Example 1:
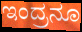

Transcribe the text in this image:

ಇಂದ್ರನೂ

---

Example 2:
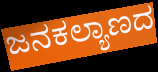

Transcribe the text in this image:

ಜನಕಲ್ಯಾಣದ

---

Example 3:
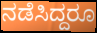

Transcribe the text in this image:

ನಡೆಸಿದ್ದರೂ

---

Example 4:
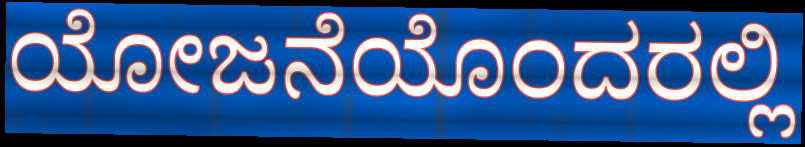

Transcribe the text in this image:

ಯೋಜನೆಯೊಂದರಲ್ಲಿ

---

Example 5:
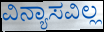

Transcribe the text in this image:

ವಿನ್ಯಾಸವಿಲ್ಲ